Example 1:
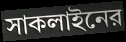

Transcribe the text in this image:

সাকলাইনের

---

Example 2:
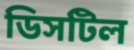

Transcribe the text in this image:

ডিসটিল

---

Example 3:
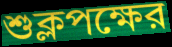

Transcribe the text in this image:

শুক্লপক্ষের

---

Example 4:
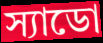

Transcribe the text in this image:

স্যাডো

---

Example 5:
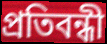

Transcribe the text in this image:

প্রতিবন্ধী